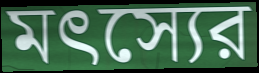
মৎস্যের